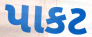
પાકટ